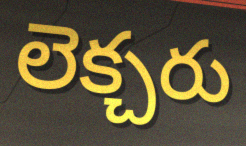
లెక్చరు